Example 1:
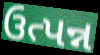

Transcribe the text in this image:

ઉત્પન્ન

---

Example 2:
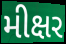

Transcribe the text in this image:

મીક્ષર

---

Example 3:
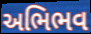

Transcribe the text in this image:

અભિભવ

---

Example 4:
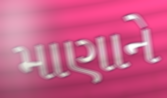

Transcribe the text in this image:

માણાને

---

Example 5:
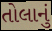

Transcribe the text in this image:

તોલાનું